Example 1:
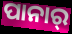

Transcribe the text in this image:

ପାନାର୍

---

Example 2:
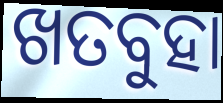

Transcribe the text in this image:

ଖତବୁହା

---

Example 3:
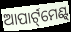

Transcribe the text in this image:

ଆପାର୍ଟ୍‌ମେଣ୍ଟ୍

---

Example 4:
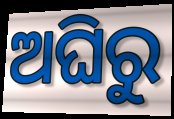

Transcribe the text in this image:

ଅଘିରୁ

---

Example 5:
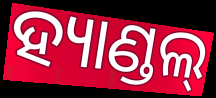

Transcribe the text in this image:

ହ୍ୟାଣ୍ଡଲ୍